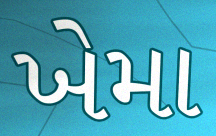
ખેમા